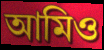
আমিও